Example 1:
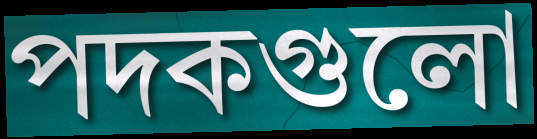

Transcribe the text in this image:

পদকগুলো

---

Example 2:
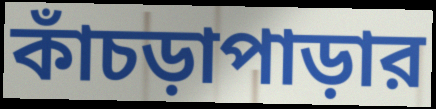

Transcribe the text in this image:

কাঁচড়াপাড়ার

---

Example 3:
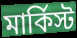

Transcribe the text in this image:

মার্কিস্ট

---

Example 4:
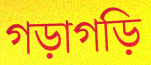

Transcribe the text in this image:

গড়াগড়ি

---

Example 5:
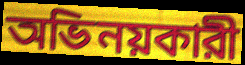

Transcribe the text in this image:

অভিনয়কারী